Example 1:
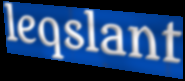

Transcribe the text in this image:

leqslant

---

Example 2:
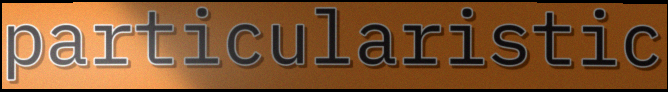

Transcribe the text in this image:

particularistic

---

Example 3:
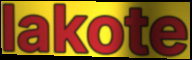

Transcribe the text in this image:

lakote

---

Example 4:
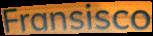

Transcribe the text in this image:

Fransisco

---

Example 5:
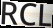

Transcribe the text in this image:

RCL